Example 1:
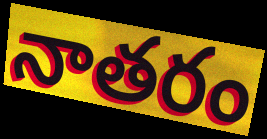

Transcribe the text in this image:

నాతరం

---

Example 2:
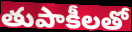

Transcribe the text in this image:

తుపాకీలతో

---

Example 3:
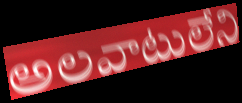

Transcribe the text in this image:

అలవాటులేని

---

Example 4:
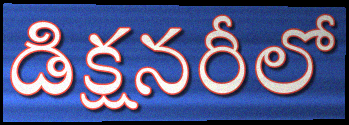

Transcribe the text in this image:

డిక్షనరీలో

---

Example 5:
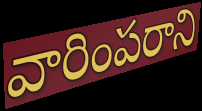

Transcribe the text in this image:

వారింపరాని